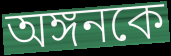
অঙ্গনকে